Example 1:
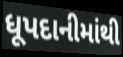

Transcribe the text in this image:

ધૂપદાનીમાંથી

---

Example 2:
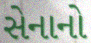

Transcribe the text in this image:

સેનાનો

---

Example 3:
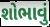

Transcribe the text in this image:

શોભાવું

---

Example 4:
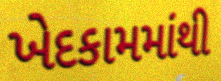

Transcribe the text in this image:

ખેદકામમાંથી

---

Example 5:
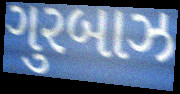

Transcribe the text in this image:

ગુરબાઝ